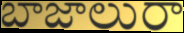
బాజాలురా